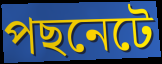
পছনেটে